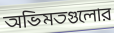
অভিমতগুলোর